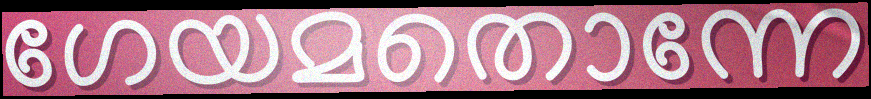
ഗേയമതൊന്നേ